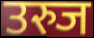
उरुज